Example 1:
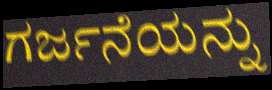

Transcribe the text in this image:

ಗರ್ಜನೆಯನ್ನು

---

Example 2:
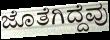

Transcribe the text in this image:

ಜೊತೆಗಿದ್ದೆವು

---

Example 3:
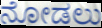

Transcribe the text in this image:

ನೋಡಲು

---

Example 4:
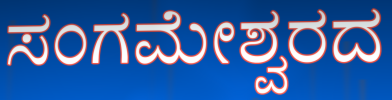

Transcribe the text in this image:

ಸಂಗಮೇಶ್ವರದ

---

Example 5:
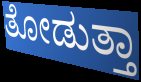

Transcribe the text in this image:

ತೋಡುತ್ತಾ